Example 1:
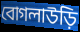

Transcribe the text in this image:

বোগলাউড়ি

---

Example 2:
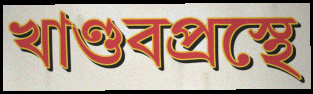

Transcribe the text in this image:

খাণ্ডবপ্রস্থে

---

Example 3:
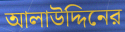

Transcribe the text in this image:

আলাউদ্দিনের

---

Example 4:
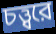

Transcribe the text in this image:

চত্ত্বরে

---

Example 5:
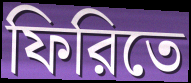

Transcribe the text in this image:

ফিরিতে